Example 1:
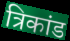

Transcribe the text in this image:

त्रिकांड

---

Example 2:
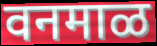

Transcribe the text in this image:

वनमाळ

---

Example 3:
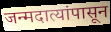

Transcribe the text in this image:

जन्मदात्यांपासून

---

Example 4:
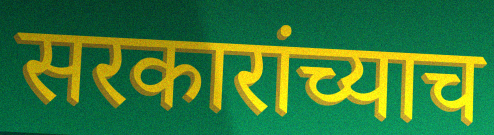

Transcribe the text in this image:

सरकारांच्याच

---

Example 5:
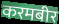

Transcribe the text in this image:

करमबीर